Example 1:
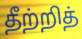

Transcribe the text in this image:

தீற்றித்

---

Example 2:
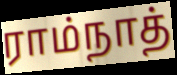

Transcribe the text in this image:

ராம்நாத்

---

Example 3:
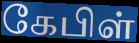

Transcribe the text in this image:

கேபிள்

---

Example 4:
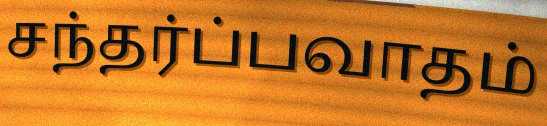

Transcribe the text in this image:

சந்தர்ப்பவாதம்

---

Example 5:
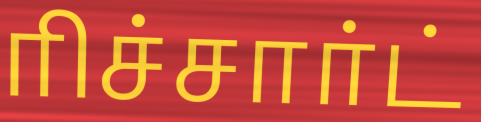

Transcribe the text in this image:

ரிச்சார்ட்